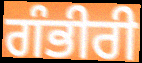
ਗੰਭੀਰੀ